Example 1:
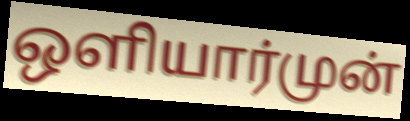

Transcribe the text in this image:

ஒளியார்முன்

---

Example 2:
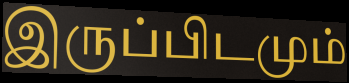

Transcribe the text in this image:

இருப்பிடமும்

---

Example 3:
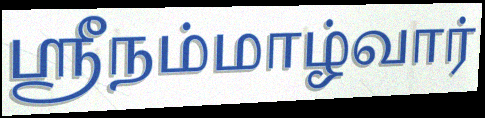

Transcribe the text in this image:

ஸ்ரீநம்மாழ்வார்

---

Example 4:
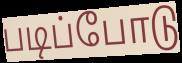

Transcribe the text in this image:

படிப்போடு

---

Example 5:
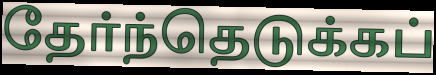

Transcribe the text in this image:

தேர்ந்தெடுக்கப்